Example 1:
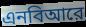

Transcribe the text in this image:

এনবিআরে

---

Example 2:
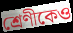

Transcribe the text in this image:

শ্রেণীকেও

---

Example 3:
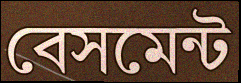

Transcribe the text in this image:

বেসমেন্ট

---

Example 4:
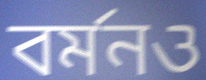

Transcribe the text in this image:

বর্মনও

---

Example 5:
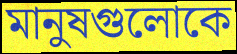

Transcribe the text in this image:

মানুষগুলোকে